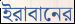
ইরাবানের